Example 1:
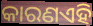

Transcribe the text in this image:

କାରଣଏହି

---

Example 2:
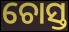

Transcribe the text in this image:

ଚୋସ୍ତ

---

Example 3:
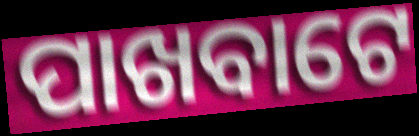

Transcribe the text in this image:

ପାଖବାଟେ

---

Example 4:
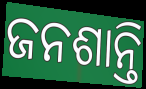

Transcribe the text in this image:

ଜନଶାନ୍ତି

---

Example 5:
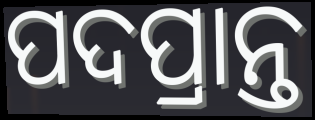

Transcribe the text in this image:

ପଦପ୍ରାନ୍ତ